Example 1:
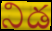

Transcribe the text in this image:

నిడ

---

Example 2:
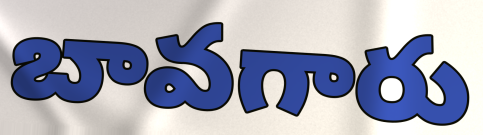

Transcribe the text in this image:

బావగారు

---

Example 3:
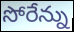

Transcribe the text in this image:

సోరేన్ను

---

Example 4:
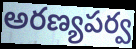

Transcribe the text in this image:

అరణ్యపర్వ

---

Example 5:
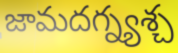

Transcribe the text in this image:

జామదగ్న్యశ్చ